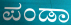
ಪಂಡಾ